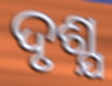
ଦୃଶ୍ଯ